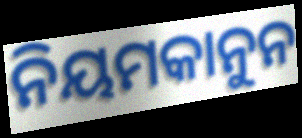
ନିୟମକାନୁନ